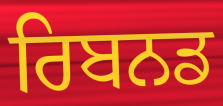
ਰਿਬਨਡ